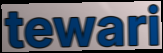
tewari